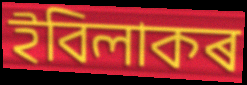
ইবিলাকৰ